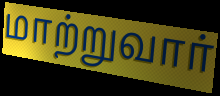
மாற்றுவார்